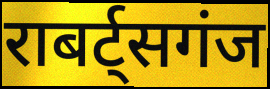
राबर्ट्सगंज